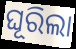
ଘୂରିଲା